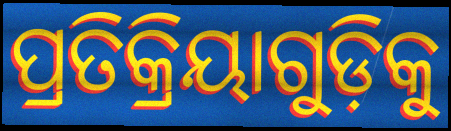
ପ୍ରତିକ୍ରିୟାଗୁଡ଼ିକୁ